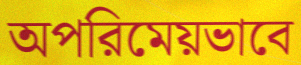
অপরিমেয়ভাবে